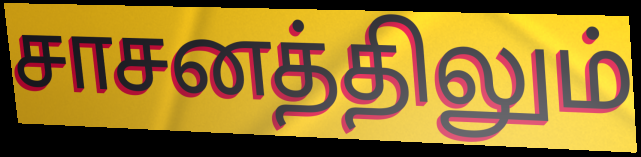
சாசனத்திலும்